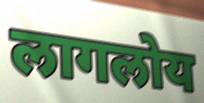
लागलोय